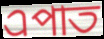
এপাত